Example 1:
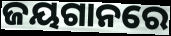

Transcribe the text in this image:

ଜୟଗାନରେ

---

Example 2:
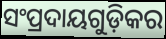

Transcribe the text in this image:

ସଂପ୍ରଦାୟଗୁଡ଼ିକର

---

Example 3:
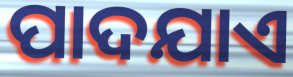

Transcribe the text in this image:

ପାଦଯାଏ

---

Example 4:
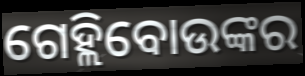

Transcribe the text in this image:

ଗେହ୍ଲିବୋଉଙ୍କର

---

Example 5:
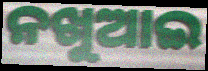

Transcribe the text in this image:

ନଖୁଆଇ